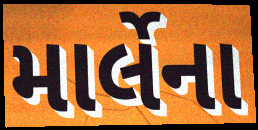
માર્લેના